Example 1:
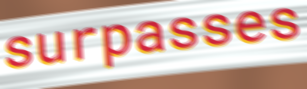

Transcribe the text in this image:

surpasses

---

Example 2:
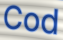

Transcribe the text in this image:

Cod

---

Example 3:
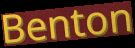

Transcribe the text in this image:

Benton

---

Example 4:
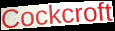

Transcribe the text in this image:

Cockcroft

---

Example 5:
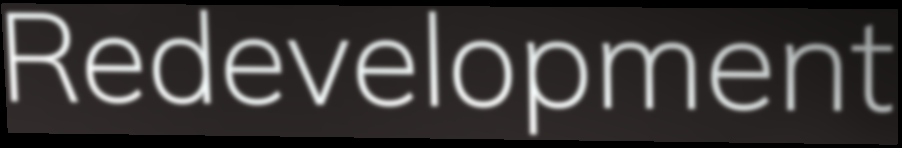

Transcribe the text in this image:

Redevelopment